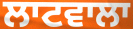
ਲਾਟਵਾਲਾ